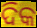
ଦିକ